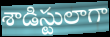
శాడిస్టులాగా